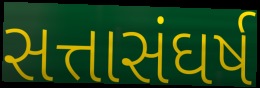
સત્તાસંઘર્ષ